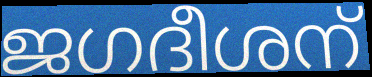
ജഗദീശന്